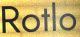
Rotlo